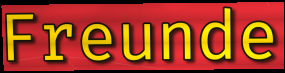
Freunde